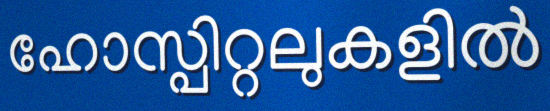
ഹോസ്പിറ്റലുകളിൽ